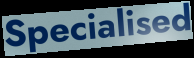
Specialised